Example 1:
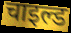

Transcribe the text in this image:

चाइल्ड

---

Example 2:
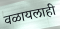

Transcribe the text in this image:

वळायलाही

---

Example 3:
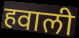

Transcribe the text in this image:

हवाली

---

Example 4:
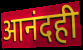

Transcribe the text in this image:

आनंदही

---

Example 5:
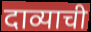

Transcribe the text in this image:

दाव्याची